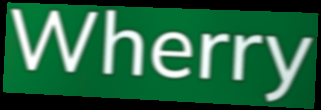
Wherry